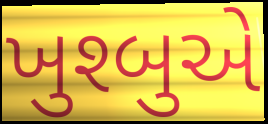
ખુશ્બુએ